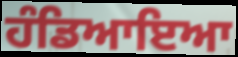
ਹੰਡਿਆਇਆ